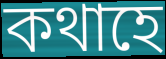
কথাহে